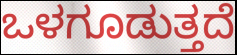
ಒಳಗೂಡುತ್ತದೆ